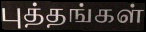
புத்தங்கள்